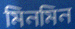
মিনমিন